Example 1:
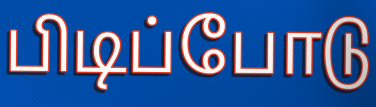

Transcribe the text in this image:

பிடிப்போடு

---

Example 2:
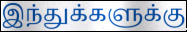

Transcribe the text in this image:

இந்துக்களுக்கு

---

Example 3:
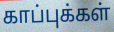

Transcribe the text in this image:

காப்புக்கள்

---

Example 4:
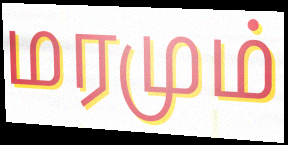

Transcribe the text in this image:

மரமும்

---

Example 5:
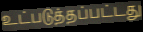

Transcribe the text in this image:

உட்படுத்தப்பட்டது